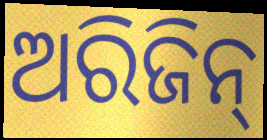
ଅରିଜିନ୍